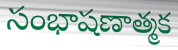
సంభాషణాత్మక